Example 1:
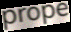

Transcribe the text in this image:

prope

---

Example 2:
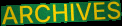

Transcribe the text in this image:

ARCHIVES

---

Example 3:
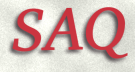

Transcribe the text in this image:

SAQ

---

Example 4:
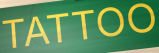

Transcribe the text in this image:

TATTOO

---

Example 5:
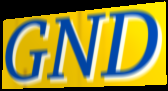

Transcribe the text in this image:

GND